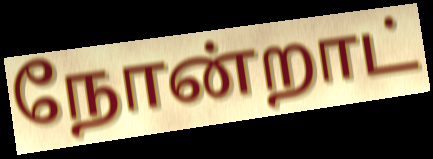
நோன்றாட்